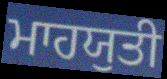
ਮਾਹਯੁਤੀ